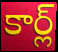
కార్ల్